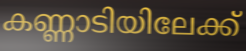
കണ്ണാടിയിലേക്ക്